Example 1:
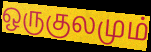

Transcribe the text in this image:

ஒருகுலமும்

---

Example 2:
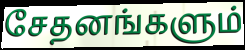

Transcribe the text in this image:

சேதனங்களும்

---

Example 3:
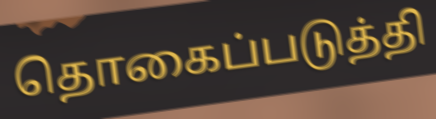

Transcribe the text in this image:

தொகைப்படுத்தி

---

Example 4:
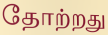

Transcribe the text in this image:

தோற்றது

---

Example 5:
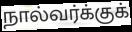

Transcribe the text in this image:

நால்வர்க்குக்